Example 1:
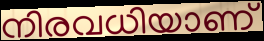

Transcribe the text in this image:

നിരവധിയാണ്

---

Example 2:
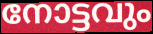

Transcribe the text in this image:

നോട്ടവും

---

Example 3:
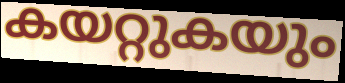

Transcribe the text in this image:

കയറ്റുകയും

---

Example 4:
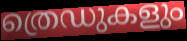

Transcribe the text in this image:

ത്രെഡുകളും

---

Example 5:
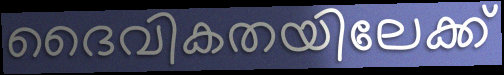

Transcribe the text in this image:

ദൈവികതയിലേക്ക്